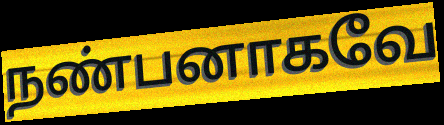
நண்பனாகவே